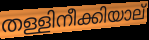
തള്ളിനീക്കിയാല്